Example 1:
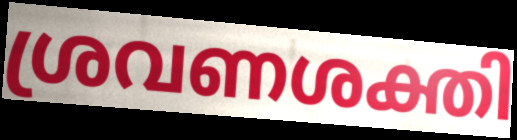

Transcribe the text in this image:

ശ്രവണശക്തി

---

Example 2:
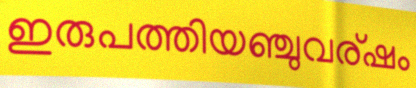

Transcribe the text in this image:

ഇരുപത്തിയഞ്ചുവര്ഷം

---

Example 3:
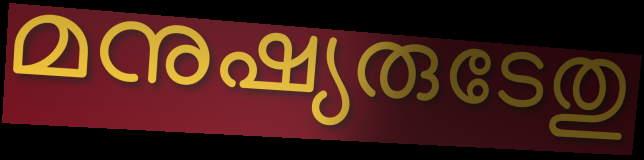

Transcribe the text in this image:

മനുഷ്യരുടേതു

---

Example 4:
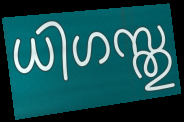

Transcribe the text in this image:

ധിഗസ്തു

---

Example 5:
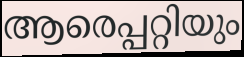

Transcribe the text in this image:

ആരെപ്പറ്റിയും